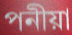
পনীয়া